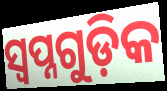
ସ୍ଵପ୍ନଗୁଡ଼ିକ